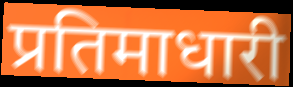
प्रतिमाधारी